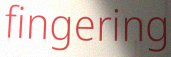
fingering